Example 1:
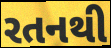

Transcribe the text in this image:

રતનથી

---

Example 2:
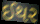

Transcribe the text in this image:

ઈથર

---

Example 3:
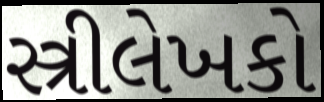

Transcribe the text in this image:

સ્ત્રીલેખકો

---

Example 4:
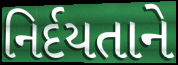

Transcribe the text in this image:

નિર્દયતાને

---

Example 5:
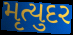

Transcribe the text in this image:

મૃત્યુદર